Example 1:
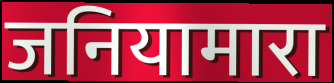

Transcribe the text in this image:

जनियामारा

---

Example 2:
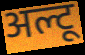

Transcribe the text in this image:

अल्टू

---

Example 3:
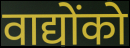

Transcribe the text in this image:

वाद्योंको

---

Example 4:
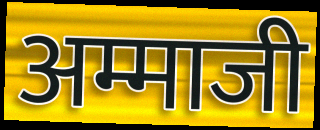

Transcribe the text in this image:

अम्माजी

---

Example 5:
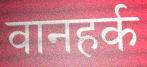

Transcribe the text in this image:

वानहर्क